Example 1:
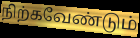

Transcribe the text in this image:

நிற்கவேண்டும்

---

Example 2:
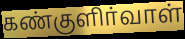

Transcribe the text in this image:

கண்குளிர்வாள்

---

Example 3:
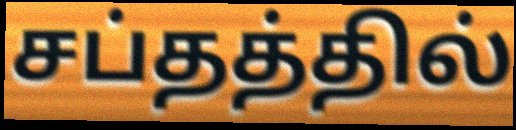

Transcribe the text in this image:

சப்தத்தில்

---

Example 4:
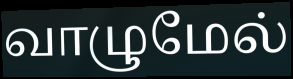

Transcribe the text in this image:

வாழுமேல்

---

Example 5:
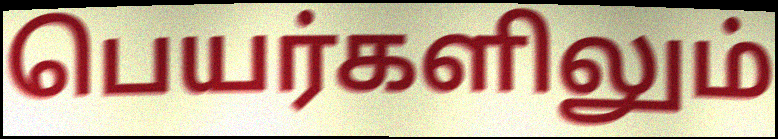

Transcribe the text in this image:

பெயர்களிலும்